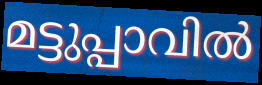
മട്ടുപ്പാവിൽ